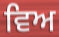
ਵਿਅ